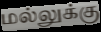
மல்லுக்கு